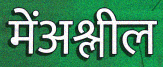
मेंअश्लील